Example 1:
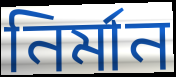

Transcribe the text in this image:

নিৰ্মান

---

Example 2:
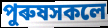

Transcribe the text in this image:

পুৰুষসকলে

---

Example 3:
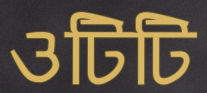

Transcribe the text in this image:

ওটিটি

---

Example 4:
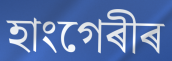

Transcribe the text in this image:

হাংগেৰীৰ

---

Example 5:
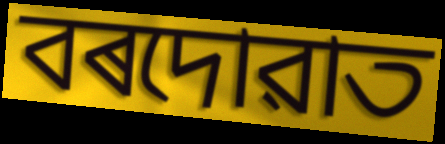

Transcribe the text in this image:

বৰদোৱাত